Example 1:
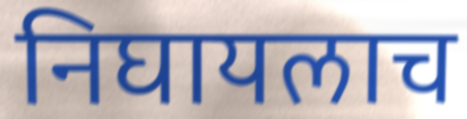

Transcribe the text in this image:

निघायलाच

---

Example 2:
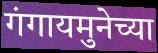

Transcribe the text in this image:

गंगायमुनेच्या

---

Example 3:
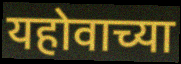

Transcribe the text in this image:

यहोवाच्या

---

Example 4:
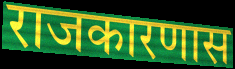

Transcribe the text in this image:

राजकारणास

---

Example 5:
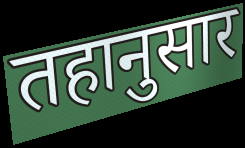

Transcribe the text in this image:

तहानुसार